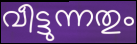
വീട്ടുന്നതും